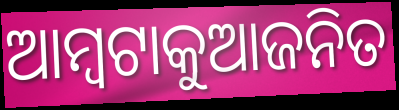
ଆମ୍ବଟାକୁଆଜନିତ